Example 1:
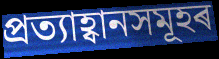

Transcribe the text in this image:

প্ৰত্যাহ্বানসমূহৰ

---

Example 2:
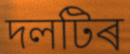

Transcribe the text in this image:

দলটিৰ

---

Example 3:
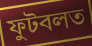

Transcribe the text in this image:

ফুটবলত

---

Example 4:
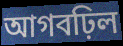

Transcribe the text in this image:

আগবঢ়িল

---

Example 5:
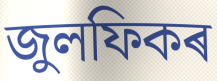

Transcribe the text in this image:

জুলফিকৰ